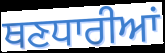
ਥਣਧਾਰੀਆਂ